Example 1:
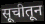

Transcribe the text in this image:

सूचीतून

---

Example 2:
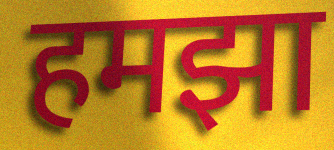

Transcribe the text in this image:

हमझा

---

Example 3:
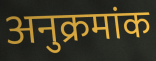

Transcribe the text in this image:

अनुक्रमांक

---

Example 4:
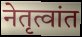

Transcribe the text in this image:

नेतृत्वांत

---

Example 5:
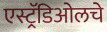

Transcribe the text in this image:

एस्ट्रॅडिओलचे